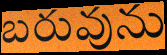
బరువును